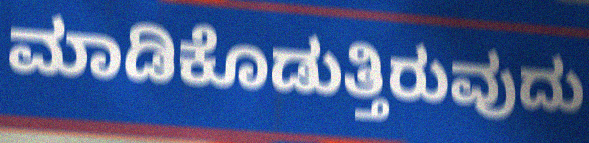
ಮಾಡಿಕೊಡುತ್ತಿರುವುದು